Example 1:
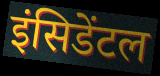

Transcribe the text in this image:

इंसिडेंटल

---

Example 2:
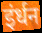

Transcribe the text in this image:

इंर्धन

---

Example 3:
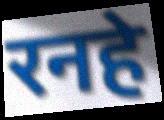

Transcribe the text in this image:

रनहे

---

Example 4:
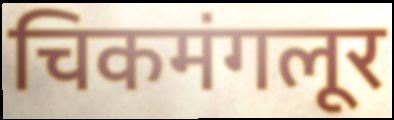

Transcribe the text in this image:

चिकमंगलूर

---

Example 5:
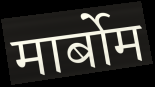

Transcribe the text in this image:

मार्बोम